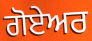
ਗੋਏਅਰ